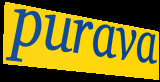
purava